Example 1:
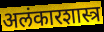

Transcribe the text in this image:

अलंकारशास्त्र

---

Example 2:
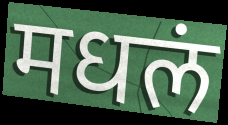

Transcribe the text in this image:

मधलं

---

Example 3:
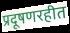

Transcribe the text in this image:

प्रदूषणरहीत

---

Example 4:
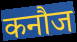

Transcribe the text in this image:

कनौज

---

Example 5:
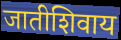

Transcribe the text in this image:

जातीशिवाय